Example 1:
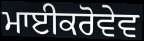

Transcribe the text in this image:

ਮਾਈਕਰੋਵੇਵ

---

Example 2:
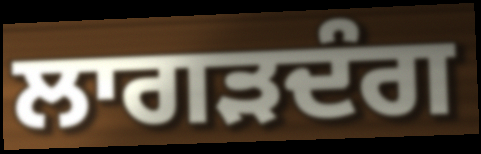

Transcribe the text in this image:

ਲਾਗੜਦੰਗ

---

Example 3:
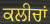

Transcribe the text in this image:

ਕਲੀਚਾਂ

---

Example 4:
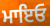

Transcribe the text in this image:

ਮਾਇਓ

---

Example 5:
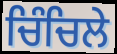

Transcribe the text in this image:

ਚਿੰਚਿਲੇ